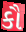
કૌ